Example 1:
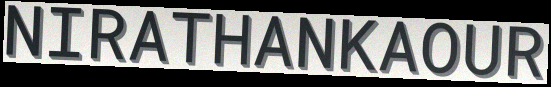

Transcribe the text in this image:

NIRATHANKAOUR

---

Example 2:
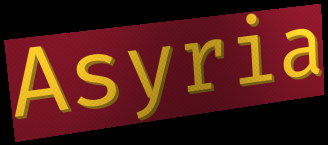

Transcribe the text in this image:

Asyria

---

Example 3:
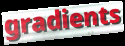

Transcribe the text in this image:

gradients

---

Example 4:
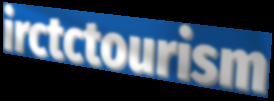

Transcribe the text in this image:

irctctourism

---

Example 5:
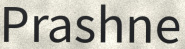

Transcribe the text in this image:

Prashne